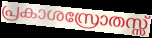
പ്രകാശസ്രോതസ്സ്